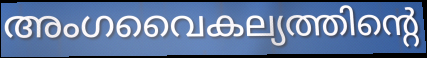
അംഗവൈകല്യത്തിന്റെ